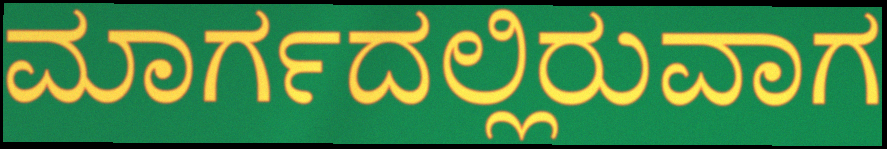
ಮಾರ್ಗದಲ್ಲಿರುವಾಗ